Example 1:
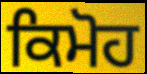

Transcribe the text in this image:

ਕਿਮੋਹ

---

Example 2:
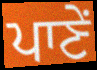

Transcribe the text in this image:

ਪਾਣੇਂ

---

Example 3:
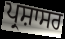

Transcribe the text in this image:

ਪ੍ਰਸ਼ਾਸਰ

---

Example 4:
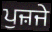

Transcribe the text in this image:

ਪੁਜ਼ਜੇ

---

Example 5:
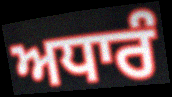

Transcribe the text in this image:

ਅਧਾਰੰ